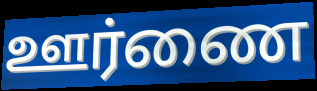
ஊர்ணை